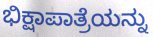
ಭಿಕ್ಷಾಪಾತ್ರೆಯನ್ನು